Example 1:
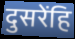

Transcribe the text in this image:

दुसरेंहि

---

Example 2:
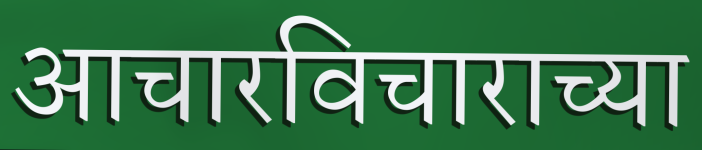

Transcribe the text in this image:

आचारविचाराच्या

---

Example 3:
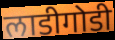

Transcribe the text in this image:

लाडीगोडी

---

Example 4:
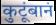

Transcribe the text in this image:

कुटूंबानं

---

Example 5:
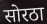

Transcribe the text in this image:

सोरठा